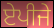
ਏਪੀਜੇ